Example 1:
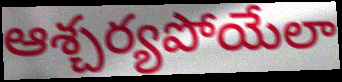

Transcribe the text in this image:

ఆశ్చర్యపోయేలా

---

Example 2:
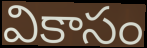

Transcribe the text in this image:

వికాసం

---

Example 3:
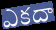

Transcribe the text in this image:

ఎకదా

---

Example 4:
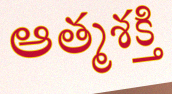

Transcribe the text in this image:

ఆత్మశక్తి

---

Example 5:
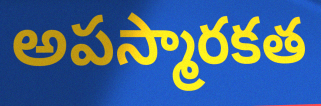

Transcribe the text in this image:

అపస్మారకత